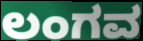
ಲಂಗವ